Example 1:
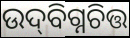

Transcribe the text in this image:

ଉଦ୍‌ବିଗ୍ନଚିତ୍ତ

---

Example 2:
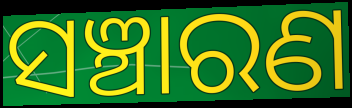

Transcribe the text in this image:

ସଞ୍ଚାରଣ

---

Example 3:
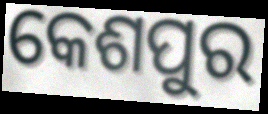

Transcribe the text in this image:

କେଶପୁର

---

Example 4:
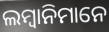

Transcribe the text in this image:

ଲମ୍ବାନିମାନେ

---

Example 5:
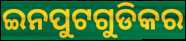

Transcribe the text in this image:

ଇନପୁଟଗୁଡିକର